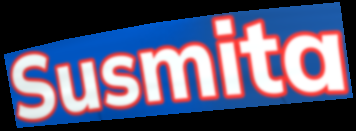
Susmita